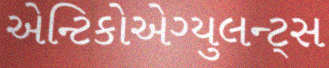
એન્ટિકોએગ્યુલન્ટ્સ